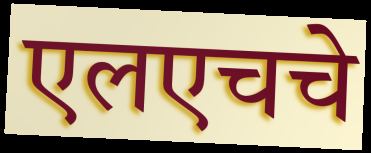
एलएचचे